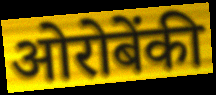
ओरोबेंकी